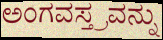
ಅಂಗವಸ್ತ್ರವನ್ನು